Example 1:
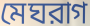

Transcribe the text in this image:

মেঘরাগ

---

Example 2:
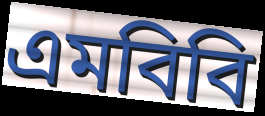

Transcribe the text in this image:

এমবিবি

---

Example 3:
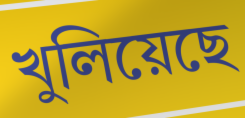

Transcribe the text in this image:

খুলিয়েছে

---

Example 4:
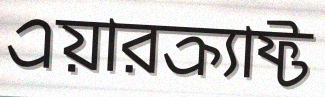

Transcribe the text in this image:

এয়ারক্র্যাফ্ট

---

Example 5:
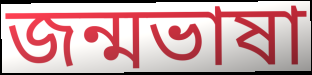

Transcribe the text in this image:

জন্মভাষা